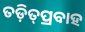
ତଡ଼ିତ୍‌ପ୍ରବାହ